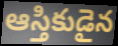
ఆస్తికుడైన